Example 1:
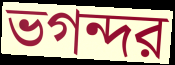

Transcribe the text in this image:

ভগন্দর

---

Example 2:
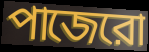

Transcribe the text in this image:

পাজেরো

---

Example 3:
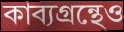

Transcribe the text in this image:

কাব্যগ্রন্থেও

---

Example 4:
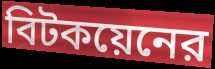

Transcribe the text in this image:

বিটকয়েনের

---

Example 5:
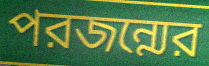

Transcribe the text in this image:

পরজন্মের